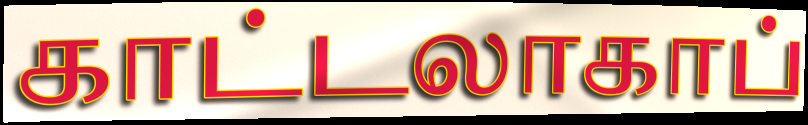
காட்டலாகாப்